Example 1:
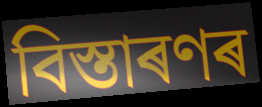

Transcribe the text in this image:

বিস্তাৰণৰ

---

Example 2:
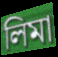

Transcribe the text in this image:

লিমা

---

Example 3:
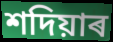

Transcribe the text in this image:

শদিয়াৰ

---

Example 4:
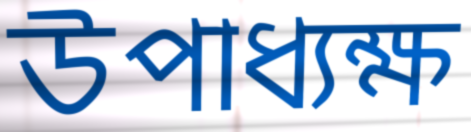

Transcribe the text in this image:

উপাধ্যক্ষ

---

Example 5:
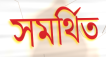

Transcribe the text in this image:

সমৰ্থিত